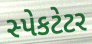
સ્પેકટેટર